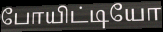
போயிட்டியோ